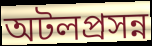
অটলপ্রসন্ন